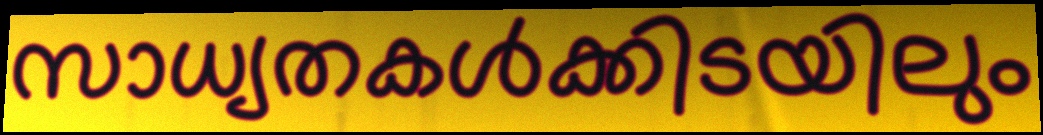
സാധ്യതകൾക്കിടയിലും